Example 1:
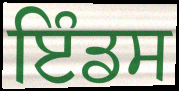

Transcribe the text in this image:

ਇੰਡਸ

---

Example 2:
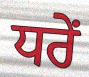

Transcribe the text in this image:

ਧਰੇਂ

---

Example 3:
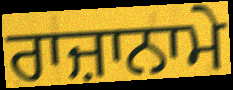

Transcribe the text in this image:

ਰਾਜ਼ਾਨਾਮੇ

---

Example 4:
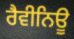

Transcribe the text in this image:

ਰੈਵੀਨਿਊ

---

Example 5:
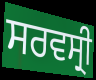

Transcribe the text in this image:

ਸਰਵਸ੍ਰੀ